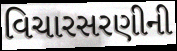
વિચારસરણીની